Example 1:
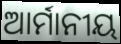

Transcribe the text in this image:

ଆର୍ମାନୀୟ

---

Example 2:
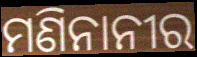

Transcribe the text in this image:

ମଣିନାନୀର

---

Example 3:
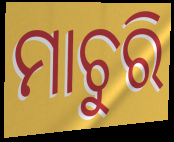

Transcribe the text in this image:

ମାଚୁରି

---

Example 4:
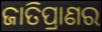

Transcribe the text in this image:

ଜାତିପ୍ରାଣର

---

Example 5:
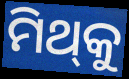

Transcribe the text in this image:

ମିଥ୍‍କୁ